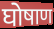
घोषाण